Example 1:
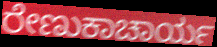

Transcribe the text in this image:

ರೇಣುಕಾಚಾರ್ಯ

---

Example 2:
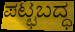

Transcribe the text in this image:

ಪಟ್ಟಬದ್ಧ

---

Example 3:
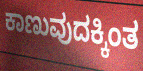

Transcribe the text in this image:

ಕಾಣುವುದಕ್ಕಿಂತ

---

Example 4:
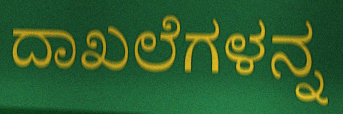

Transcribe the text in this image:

ದಾಖಲೆಗಳನ್ನ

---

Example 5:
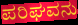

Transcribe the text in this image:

ಪರಿಘವನು